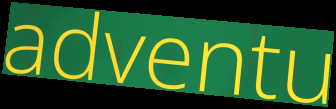
adventu